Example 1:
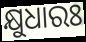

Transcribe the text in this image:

କ୍ଷୁଧାରଃ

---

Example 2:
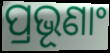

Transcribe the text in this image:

ପ୍ରଭୂଣାଂ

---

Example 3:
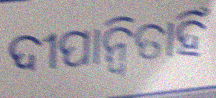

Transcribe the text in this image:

ଦୀପାନ୍ୱିତାହିଁ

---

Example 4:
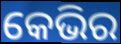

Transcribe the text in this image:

କେଭିର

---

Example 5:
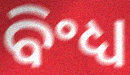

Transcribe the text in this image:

ବିଂଧ୍ୟ